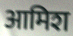
आमिश